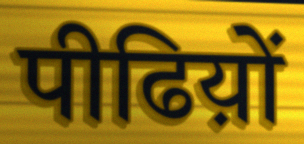
पीढिय़ों